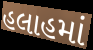
હલાહમાં